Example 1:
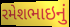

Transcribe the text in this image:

રમેશભાઇનું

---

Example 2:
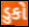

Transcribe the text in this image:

ડુકો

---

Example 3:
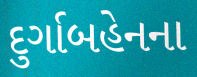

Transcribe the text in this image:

દુર્ગાબહેનના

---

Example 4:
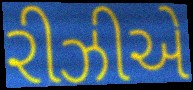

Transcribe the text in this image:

રીઝીએ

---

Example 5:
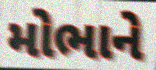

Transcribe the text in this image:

મોભાને